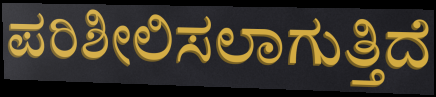
ಪರಿಶೀಲಿಸಲಾಗುತ್ತಿದೆ